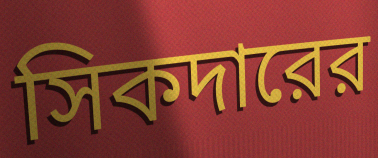
সিকদারের